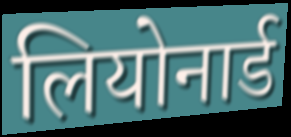
लियोनार्ड